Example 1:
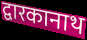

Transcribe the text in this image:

द्वारकानाथ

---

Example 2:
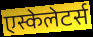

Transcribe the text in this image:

एस्केलेटर्स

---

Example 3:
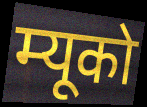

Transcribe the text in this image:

म्यूको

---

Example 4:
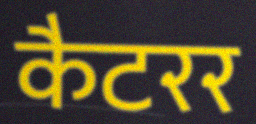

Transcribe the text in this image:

कैटरर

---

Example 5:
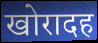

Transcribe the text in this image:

खोरादह